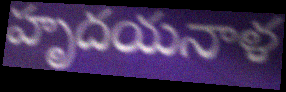
హృదయనాళ